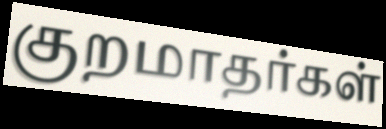
குறமாதர்கள்